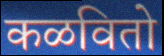
कळवितो